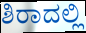
ಶಿರಾದಲ್ಲಿ